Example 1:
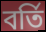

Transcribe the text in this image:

বৰ্তি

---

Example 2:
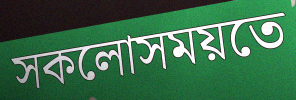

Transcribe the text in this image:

সকলোসময়তে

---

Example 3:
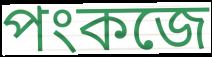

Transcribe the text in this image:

পংকজে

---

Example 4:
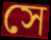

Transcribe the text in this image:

সে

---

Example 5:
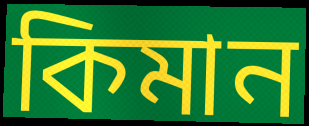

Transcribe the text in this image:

কিমান